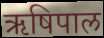
ऋषिपाल